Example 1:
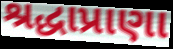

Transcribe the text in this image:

શ્રદ્ધાપ્રાણા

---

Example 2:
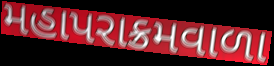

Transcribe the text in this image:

મહાપરાક્રમવાળા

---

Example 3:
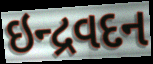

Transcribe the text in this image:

ઇન્દ્રવદન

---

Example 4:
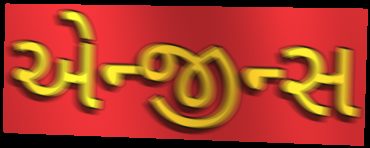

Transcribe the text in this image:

એન્જીન્સ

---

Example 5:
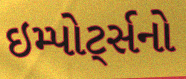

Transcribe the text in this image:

ઇમ્પોર્ટ્સનો